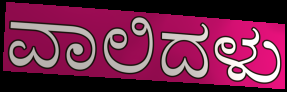
ವಾಲಿದಳು